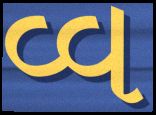
વ્વ